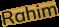
Rahim